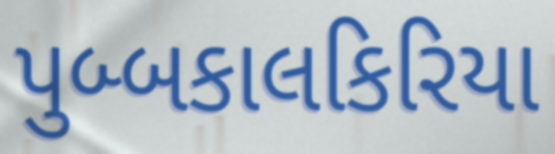
પુબ્બકાલકિરિયા